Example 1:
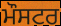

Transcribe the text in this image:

ਮੌਸਟਰ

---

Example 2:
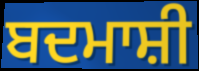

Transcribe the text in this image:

ਬਦਮਾਸ਼ੀ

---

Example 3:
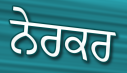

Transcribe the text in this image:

ਨੇਰਕਰ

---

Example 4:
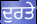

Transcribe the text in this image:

ਦੁਰਤੇ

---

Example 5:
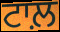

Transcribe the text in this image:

ਟਾਲ਼